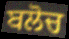
ਬਲੋਚ